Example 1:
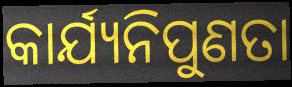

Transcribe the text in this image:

କାର୍ଯ୍ୟନିପୁଣତା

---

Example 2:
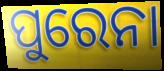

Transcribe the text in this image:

ପୁରେନା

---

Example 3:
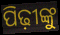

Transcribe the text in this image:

ପିଢ଼ୀଙ୍କୁ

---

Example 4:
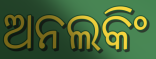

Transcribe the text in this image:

ଅନଲକିଂ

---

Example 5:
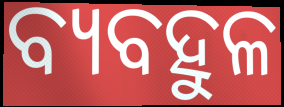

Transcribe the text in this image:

ବ୍ୟବହୁଳ